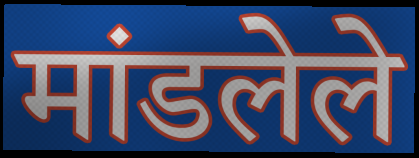
मांडलेले